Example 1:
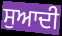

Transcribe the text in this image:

ਸੁਆਦੀ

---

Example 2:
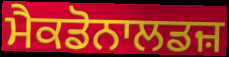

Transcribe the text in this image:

ਮੈਕਡੋਨਾਲਡਜ਼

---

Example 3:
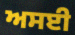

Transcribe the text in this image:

ਅਸਈ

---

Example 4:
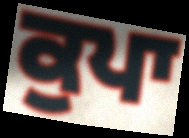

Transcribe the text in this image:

ਕੁਪਾ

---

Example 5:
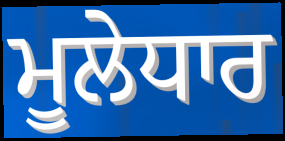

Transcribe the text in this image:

ਮੂਲੇਧਾਰ